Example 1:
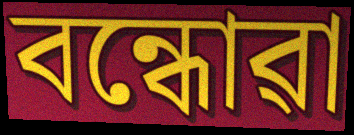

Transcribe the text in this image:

বন্ধোৱা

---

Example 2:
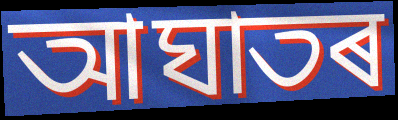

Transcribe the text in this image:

আঘাতৰ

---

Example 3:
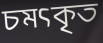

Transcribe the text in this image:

চমৎকৃত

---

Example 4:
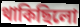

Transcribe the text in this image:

থাকিছিলো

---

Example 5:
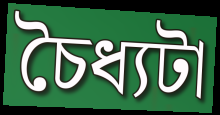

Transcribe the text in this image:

চৈধ্যটা